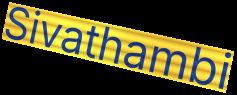
Sivathambi